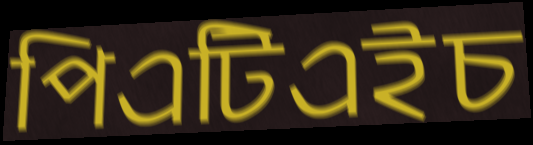
পিএটিএইচ